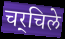
चर्चिले